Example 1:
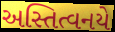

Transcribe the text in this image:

અસ્તિત્વનયે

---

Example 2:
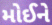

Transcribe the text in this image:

મોઈને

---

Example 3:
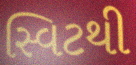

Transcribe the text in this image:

સ્વિટથી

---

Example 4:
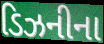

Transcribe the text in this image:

ડિઝનીના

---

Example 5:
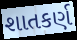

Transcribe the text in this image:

શાતકર્ણ